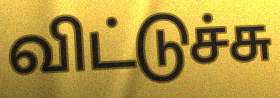
விட்டுச்சு